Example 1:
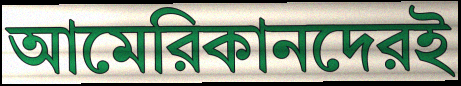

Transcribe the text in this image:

আমেরিকানদেরই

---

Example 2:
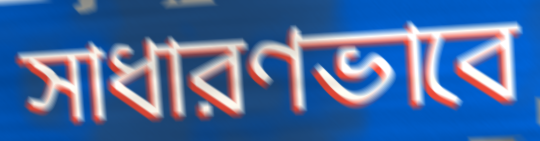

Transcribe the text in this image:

সাধারণভাবে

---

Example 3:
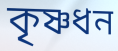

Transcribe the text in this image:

কৃষ্ণধন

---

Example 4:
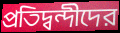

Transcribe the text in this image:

প্রতিদ্বন্দীদের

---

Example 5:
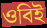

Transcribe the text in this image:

ওবিই